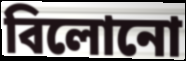
বিলোনো